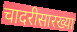
चादरीसारख्या